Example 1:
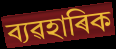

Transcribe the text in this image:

ব্যৱহাৰিক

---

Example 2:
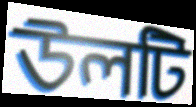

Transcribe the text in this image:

উলটি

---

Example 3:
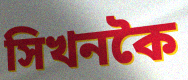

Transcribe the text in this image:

সিখনকৈ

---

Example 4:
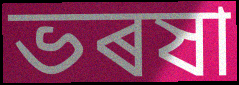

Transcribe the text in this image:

ভৰষা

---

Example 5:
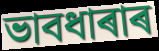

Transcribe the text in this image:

ভাবধাৰাৰ